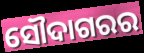
ସୌଦାଗରର